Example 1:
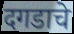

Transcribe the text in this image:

दगडाचे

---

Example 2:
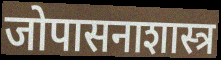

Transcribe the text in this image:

जोपासनाशास्त्र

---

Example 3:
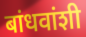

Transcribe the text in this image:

बांधवांशी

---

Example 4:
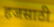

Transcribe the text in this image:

हजसाठी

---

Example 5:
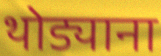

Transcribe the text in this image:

थोड्याना